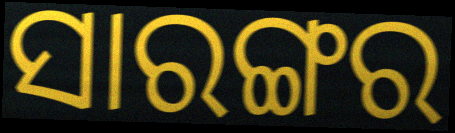
ସାରଙ୍ଗର